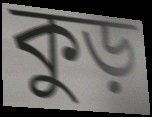
কুড়